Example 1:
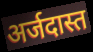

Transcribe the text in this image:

अर्जदास्त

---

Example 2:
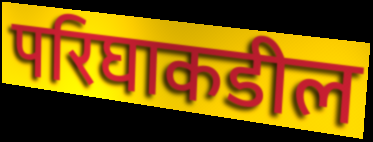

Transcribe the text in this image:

परिघाकडील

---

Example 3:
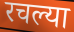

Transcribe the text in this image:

रचल्या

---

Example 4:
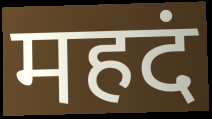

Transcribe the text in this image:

महदं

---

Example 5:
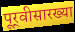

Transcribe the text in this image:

पूर्वीसारख्या